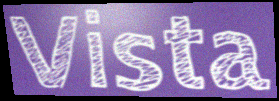
Vista